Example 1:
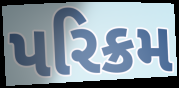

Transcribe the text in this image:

પરિક્રમ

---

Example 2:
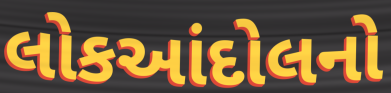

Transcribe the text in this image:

લોકઆંદોલનો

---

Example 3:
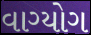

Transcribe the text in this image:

વાગ્યોગ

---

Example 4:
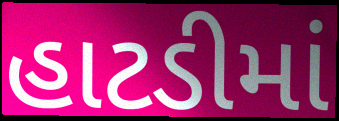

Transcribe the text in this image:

હાટડીમાં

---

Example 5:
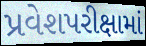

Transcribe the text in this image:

પ્રવેશપરીક્ષામાં